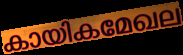
കായികമേഖല